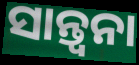
ସାନ୍ତ୍ୱନା